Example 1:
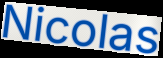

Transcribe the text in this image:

Nicolas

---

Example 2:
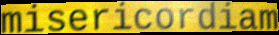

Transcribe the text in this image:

misericordiam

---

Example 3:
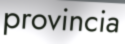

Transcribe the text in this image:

provincia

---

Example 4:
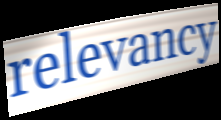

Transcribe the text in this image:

relevancy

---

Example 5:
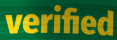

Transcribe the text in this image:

verified